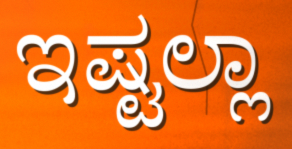
ಇಷ್ಟಲ್ಲಾ